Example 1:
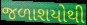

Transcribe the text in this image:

જળાશયોથી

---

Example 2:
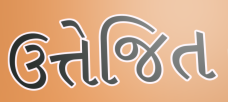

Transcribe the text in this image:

ઉત્તેજિત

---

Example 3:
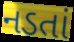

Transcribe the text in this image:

નડતાં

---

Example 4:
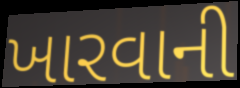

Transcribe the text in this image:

ખારવાની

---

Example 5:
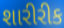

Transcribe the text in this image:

શારીરીક